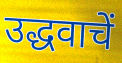
उद्धवाचें